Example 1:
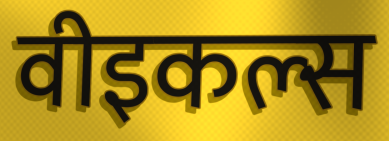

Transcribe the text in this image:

वीइकल्‍स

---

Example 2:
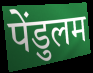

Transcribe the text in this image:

पेंडुलम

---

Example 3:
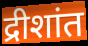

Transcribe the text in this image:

द्रीशांत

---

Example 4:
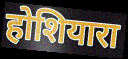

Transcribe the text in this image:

होशियारा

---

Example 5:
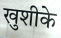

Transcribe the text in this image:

खुशीके